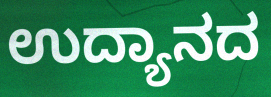
ಉದ್ಯಾನದ